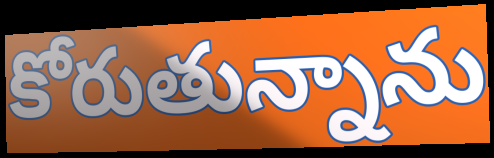
కోరుతున్నాను